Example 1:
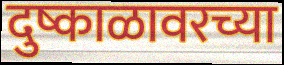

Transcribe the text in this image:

दुष्काळावरच्या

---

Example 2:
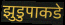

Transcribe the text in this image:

झुडुपाकडे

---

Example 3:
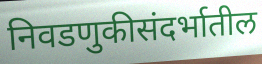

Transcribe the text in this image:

निवडणुकीसंदर्भातील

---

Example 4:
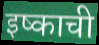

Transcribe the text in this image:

इष्काची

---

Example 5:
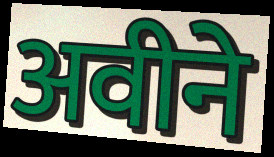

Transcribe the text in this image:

अवीने